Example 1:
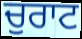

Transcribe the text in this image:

ਚੁਰਾਟ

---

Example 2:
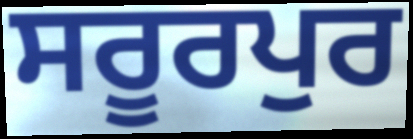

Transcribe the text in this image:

ਸਰੂਰਪੁਰ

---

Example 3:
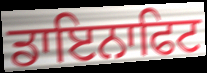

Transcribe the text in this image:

ਡਾਇਨਾਫਿਟ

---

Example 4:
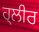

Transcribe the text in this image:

ਹ੍ਲੀਰ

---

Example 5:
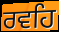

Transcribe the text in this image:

ਰਵਹਿ